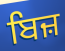
ਬਿਜ਼